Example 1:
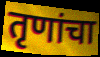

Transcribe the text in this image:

तृणांचा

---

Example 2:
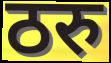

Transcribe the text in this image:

ठरु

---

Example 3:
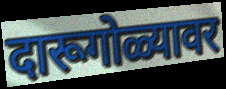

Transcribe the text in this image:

दारूगोळ्यावर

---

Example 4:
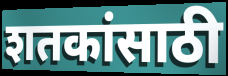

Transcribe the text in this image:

शतकांसाठी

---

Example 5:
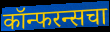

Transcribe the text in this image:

कॉन्फरन्सचा